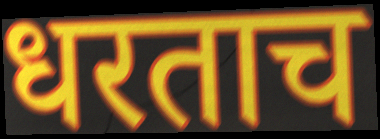
धरताच